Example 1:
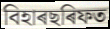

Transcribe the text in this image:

বিহাৰছৰিফত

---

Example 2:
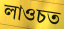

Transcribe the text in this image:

লাওচত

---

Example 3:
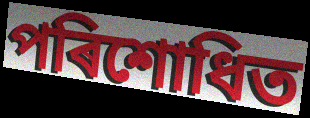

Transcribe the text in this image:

পৰিশোধিত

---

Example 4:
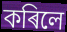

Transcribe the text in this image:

কৰিলে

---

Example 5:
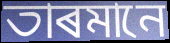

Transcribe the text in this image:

তাৰমানে